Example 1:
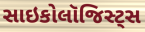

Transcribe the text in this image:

સાઇકોલૉજિસ્ટ્સ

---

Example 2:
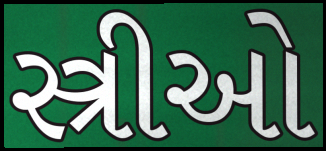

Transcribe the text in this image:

સ્ત્રીઓ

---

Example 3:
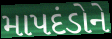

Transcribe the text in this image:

માપદંડોને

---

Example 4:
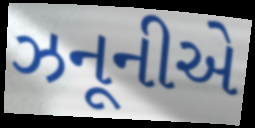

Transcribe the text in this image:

ઝનૂનીએ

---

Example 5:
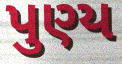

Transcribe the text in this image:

પુણ્ય